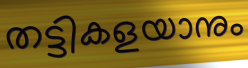
തട്ടികളയാനും